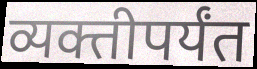
व्यक्तीपर्यंत